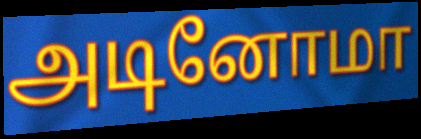
அடினோமா